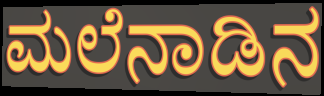
ಮಲೆನಾಡಿನ